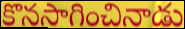
కొనసాగించినాడు